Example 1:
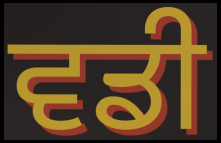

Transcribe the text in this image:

ਵਡੀ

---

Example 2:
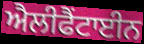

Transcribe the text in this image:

ਐਲੀਫੈਂਟਾਈਨ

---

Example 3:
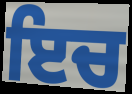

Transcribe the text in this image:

ਇਚ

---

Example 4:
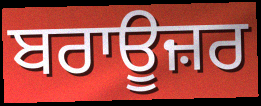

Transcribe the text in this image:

ਬਰਾਊਜ਼ਰ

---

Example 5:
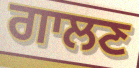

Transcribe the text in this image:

ਗਾਲਣ